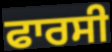
ਫਾਰਸੀ